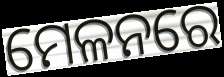
ମେଳନରେ